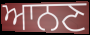
ਆਨਣ